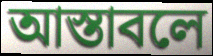
আস্তাবলে